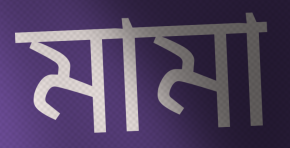
মামা